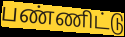
பண்ணிட்டு